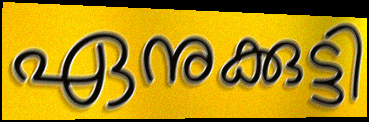
ഏനുക്കുട്ടി